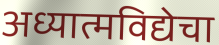
अध्यात्मविद्येचा